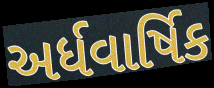
અર્ધવાર્ષિક